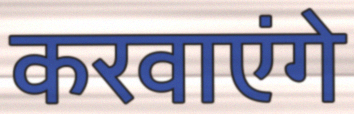
करवाएंगे